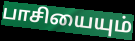
பாசியையும்